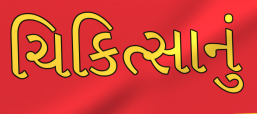
ચિકિત્સાનું